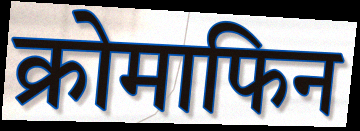
क्रोमाफिन